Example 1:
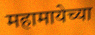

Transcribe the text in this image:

महामायेच्या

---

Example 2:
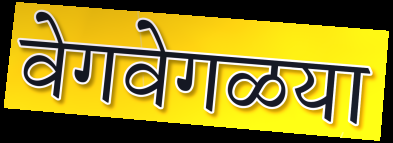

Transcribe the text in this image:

वेगवेगळया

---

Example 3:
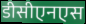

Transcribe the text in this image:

डीसीएनएस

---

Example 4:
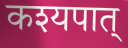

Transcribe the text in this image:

कश्यपात्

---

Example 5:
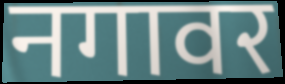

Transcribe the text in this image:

नगावर